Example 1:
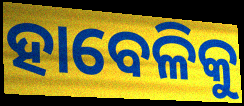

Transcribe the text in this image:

ହାବେଳିକୁ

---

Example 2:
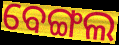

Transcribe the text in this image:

ବେଙ୍ଗଲ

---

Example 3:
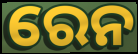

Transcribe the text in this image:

ରେନ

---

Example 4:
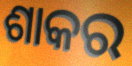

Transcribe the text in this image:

ଶାକର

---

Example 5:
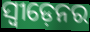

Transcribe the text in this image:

ସ୍ଵୀଡ଼େନର